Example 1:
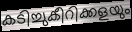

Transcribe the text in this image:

കടിച്ചുകീറിക്കളയും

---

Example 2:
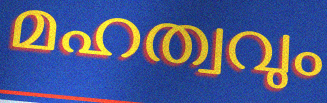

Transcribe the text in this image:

മഹത്വവും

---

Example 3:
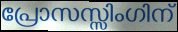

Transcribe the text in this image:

പ്രോസസ്സിംഗിന്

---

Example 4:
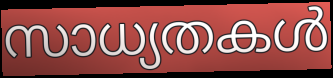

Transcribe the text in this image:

സാധ്യതകൾ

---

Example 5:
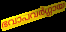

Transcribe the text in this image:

ഭവാപവർഗ്ഗായ